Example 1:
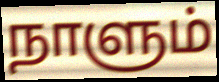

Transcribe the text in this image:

நாளும்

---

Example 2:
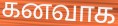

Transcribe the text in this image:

கனவாக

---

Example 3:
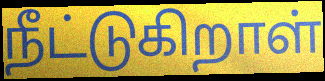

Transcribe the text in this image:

நீட்டுகிறாள்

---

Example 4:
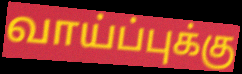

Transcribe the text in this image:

வாய்ப்புக்கு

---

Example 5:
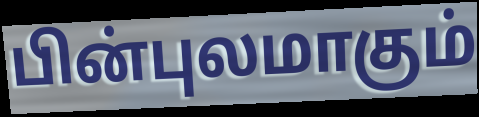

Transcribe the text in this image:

பின்புலமாகும்